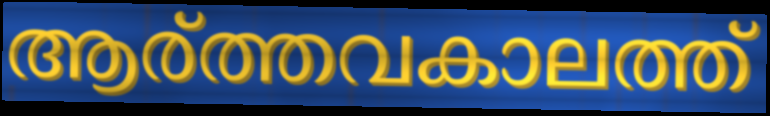
ആര്ത്തവകാലത്ത്